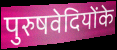
पुरुषवेदियोंके